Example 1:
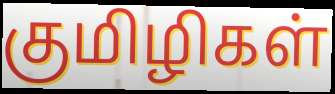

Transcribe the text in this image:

குமிழிகள்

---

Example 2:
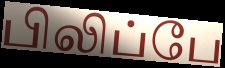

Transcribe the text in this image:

பிலிப்பே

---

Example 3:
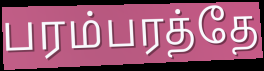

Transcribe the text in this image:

பரம்பரத்தே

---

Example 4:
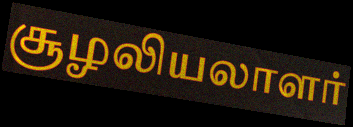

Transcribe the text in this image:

சூழலியலாளர்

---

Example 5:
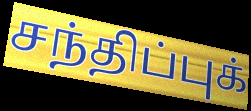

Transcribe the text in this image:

சந்திப்புக்